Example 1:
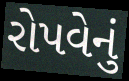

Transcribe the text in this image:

રોપવેનું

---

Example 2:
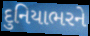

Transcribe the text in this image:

દુનિયાભરને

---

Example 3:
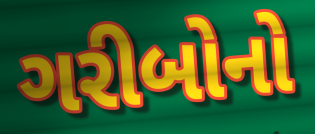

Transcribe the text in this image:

ગરીબોનો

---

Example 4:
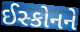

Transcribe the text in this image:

ઈસ્કોનને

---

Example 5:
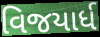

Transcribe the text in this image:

વિજયાર્ધ